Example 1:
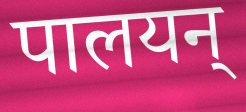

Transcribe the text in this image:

पालयन्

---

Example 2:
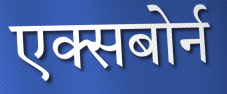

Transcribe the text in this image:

एक्सबोर्न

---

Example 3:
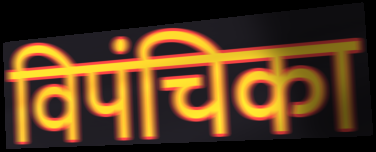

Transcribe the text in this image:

विपंचिका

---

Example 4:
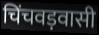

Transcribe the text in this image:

चिंचवड़वासी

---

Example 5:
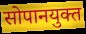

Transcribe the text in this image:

सोपानयुक्त